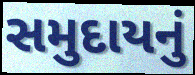
સમુદાયનું